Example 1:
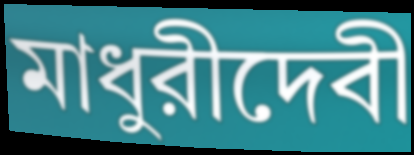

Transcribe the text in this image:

মাধুরীদেবী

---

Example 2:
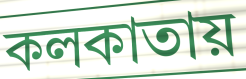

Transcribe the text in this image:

কলকাতায়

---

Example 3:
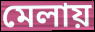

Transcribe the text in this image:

মেলায়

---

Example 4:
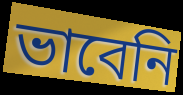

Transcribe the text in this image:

ভাবেনি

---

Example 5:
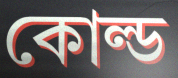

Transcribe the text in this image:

কোল্ড